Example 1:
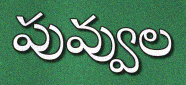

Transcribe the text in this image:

పువ్వుల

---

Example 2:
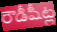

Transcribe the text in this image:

రౌడీషీట్ల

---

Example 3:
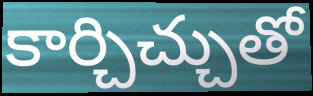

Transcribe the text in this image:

కార్చిచ్చుతో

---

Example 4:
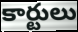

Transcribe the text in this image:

కార్టులు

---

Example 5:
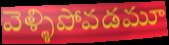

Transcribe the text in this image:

వెళ్ళిపోవడమూ